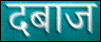
दबाज